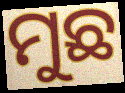
ମୁଛ